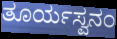
ತೂರ್ಯಸ್ವನಂ